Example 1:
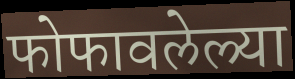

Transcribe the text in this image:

फोफावलेल्या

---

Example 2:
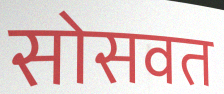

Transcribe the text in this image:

सोसवत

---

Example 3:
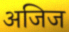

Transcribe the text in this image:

अजिज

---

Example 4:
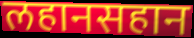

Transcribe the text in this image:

लहानसहान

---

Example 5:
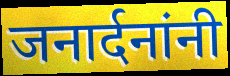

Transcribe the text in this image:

जनार्दनांनी